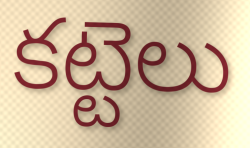
కట్టెలు